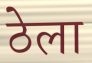
ठेला